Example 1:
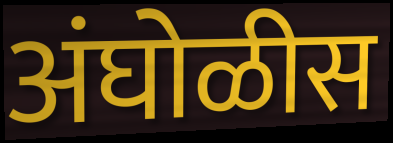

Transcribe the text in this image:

अंघोळीस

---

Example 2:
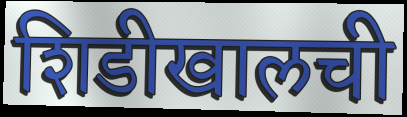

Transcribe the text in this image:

शिडीखालची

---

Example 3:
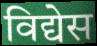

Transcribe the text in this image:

विद्येस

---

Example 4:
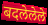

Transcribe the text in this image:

बदलेलेले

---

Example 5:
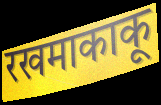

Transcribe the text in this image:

रखमाकाकू